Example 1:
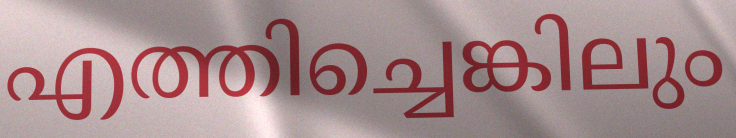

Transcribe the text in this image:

എത്തിച്ചെങ്കിലും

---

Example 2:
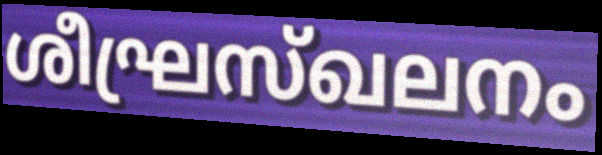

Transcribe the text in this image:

ശീഘ്രസ്ഖലനം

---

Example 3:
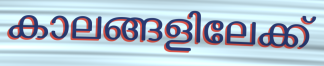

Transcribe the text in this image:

കാലങ്ങളിലേക്ക്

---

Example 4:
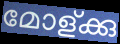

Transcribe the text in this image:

മോള്ക്കു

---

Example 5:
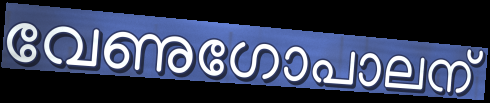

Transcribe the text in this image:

വേണുഗോപാലന്